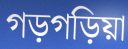
গড়গড়িয়া